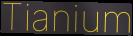
Tianium